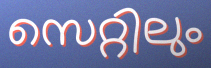
സെറ്റിലും